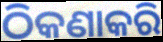
ଠିକଣାକରି